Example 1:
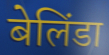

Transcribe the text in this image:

बेलिंडा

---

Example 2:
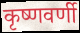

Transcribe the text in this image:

कृष्णवर्णी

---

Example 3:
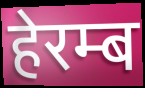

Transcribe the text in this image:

हेरम्ब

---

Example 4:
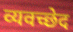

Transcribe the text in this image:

व्यवच्छेद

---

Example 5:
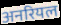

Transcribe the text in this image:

अनरियल